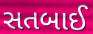
સતબાઈ